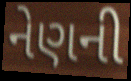
નેણની